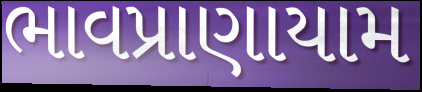
ભાવપ્રાણાયામ